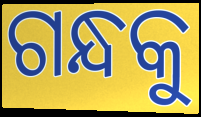
ଗନ୍ଧକୁ